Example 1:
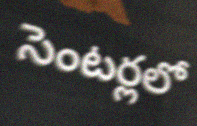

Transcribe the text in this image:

సెంటర్లలో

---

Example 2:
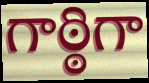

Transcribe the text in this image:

గాఠ్ఠిగా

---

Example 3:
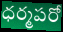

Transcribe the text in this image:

ధర్మపరో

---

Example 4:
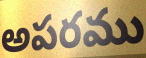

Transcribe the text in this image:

అపరము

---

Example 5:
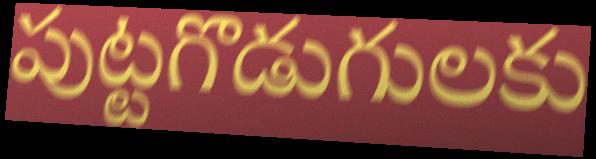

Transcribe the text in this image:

పుట్టగొడుగులకు